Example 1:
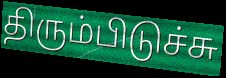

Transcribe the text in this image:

திரும்பிடுச்சு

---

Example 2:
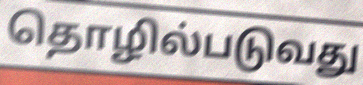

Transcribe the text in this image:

தொழில்படுவது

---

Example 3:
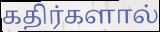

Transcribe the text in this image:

கதிர்களால்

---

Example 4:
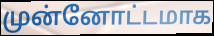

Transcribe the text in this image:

முன்னோட்டமாக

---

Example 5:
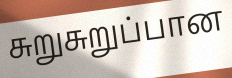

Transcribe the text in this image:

சுறுசுறுப்பான